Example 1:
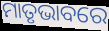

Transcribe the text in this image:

ମାତୃଭାବରେ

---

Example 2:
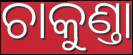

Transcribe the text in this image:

ଚାକୁଣ୍ତା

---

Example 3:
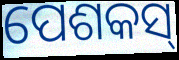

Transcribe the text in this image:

ପେଶକସ୍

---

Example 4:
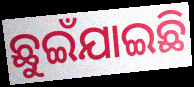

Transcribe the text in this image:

ଛୁଇଁଯାଇଛି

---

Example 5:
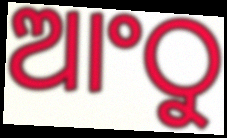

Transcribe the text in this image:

ଆଂଠୁ